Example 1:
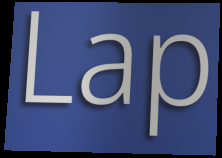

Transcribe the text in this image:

Lap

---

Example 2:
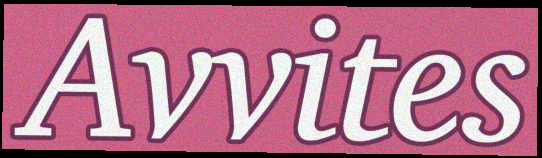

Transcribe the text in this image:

Avvites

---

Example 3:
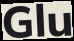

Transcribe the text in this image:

Glu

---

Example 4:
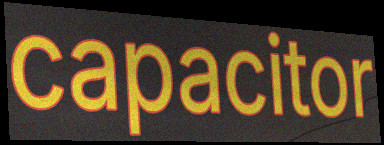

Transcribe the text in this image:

capacitor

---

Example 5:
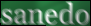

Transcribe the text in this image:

sanedo